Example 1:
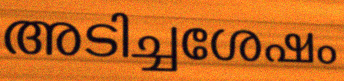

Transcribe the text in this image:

അടിച്ചശേഷം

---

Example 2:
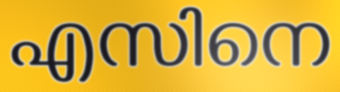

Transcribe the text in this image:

എസിനെ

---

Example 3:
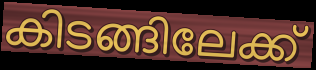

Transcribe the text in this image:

കിടങ്ങിലേക്ക്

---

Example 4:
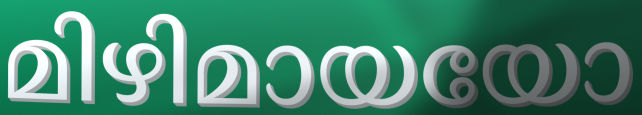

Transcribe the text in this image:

മിഴിമായയോ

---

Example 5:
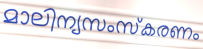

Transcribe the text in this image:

മാലിന്യസംസ്കരണം